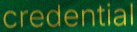
credential